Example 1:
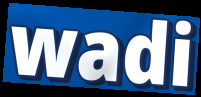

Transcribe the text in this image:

wadi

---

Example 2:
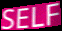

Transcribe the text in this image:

SELF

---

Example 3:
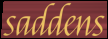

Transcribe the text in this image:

saddens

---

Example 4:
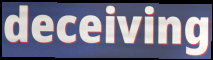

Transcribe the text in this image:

deceiving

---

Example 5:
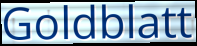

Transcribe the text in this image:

Goldblatt